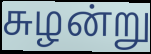
சுழன்று